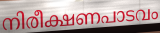
നിരീക്ഷണപാടവം